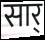
सार्